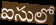
ఐసులో